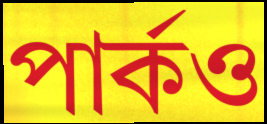
পার্কও